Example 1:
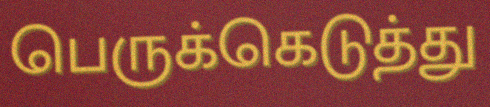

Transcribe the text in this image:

பெருக்கெடுத்து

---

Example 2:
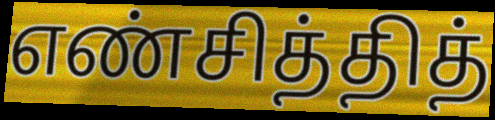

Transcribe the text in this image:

எண்சித்தித்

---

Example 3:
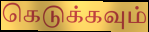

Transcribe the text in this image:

கெடுக்கவும்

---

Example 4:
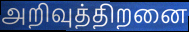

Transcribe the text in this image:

அறிவுத்திறனை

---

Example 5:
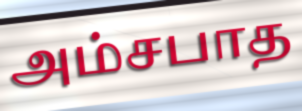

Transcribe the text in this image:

அம்சபாத